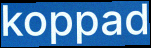
koppad